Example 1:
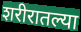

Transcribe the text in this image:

शरीरातल्या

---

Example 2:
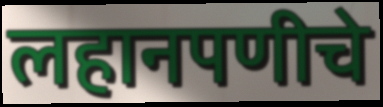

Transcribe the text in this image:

लहानपणीचे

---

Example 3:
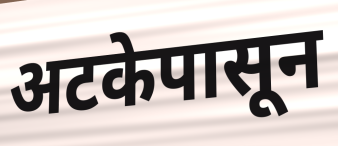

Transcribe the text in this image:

अटकेपासून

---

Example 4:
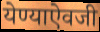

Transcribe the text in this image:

येण्याऐवजी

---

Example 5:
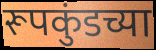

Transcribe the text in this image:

रूपकुंडच्या